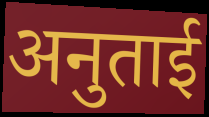
अनुताई